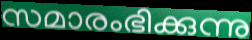
സമാരംഭിക്കുന്നു